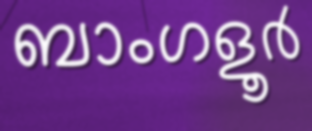
ബാംഗളൂർ